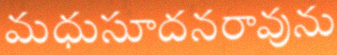
మధుసూదనరావును